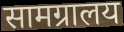
सामग्रालय